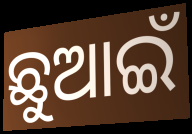
ଛୁଆଇଁ